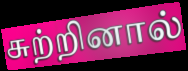
சுற்றினால்